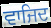
ਵਾਜਿਦ